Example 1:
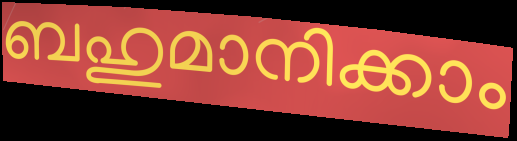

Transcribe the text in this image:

ബഹുമാനിക്കാം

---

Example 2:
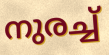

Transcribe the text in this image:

നുരച്ച്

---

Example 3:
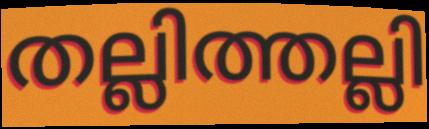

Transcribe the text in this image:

തല്ലിത്തല്ലി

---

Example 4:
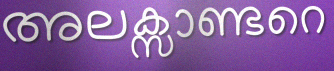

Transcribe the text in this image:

അലക്സാണ്ടറെ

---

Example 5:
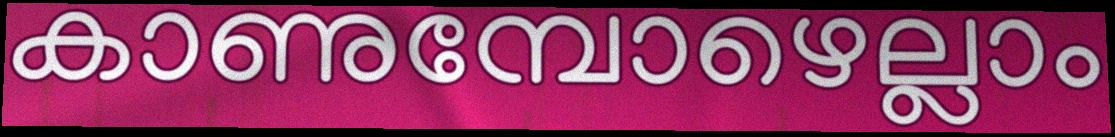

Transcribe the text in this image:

കാണുമ്പോഴെല്ലാം